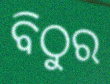
ବିଠୁର